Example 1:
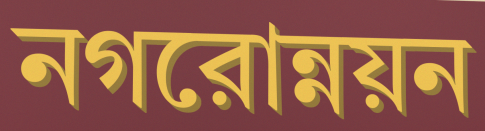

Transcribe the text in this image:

নগরোন্নয়ন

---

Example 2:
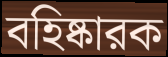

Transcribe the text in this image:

বহিষ্কারক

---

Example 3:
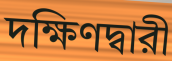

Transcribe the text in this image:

দক্ষিণদ্বারী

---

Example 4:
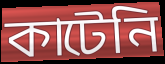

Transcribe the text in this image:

কাটেনি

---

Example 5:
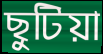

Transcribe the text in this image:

ছুটিয়া